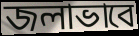
জলাভাবে